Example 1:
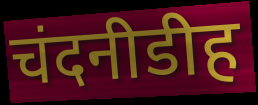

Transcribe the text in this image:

चंदनीडीह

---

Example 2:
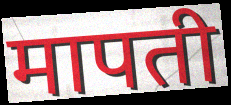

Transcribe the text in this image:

मापती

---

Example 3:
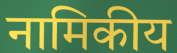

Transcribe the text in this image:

नामिकीय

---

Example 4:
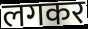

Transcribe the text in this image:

लगकर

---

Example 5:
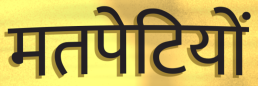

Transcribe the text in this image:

मतपेटियों